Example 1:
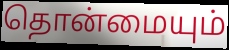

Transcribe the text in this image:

தொன்மையும்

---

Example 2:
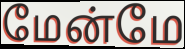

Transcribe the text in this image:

மேன்மே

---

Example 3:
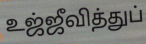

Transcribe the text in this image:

உஜ்ஜீவித்துப்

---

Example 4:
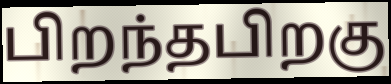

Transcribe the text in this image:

பிறந்தபிறகு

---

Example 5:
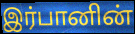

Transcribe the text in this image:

இர்பானின்